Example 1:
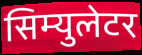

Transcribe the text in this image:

सिम्युलेटर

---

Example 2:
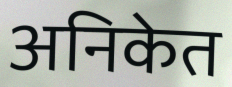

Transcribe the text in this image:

अनिकेत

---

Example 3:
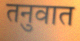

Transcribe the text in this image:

तनुवात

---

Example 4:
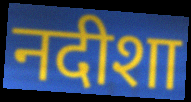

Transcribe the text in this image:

नदीशा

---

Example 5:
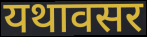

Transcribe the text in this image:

यथावसर